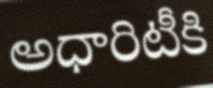
అధారిటీకి